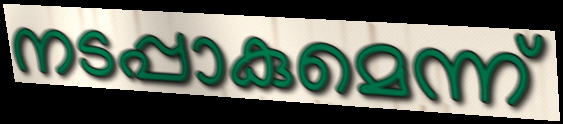
നടപ്പാകുമെന്ന്